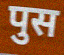
पुस